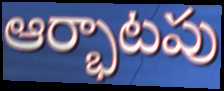
ఆర్భాటపు